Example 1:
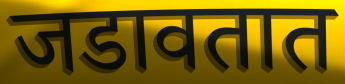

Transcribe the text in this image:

जडावतात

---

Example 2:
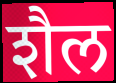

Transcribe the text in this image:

शैल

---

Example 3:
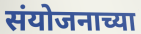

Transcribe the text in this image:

संयोजनाच्या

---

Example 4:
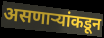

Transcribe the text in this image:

असणाऱ्यांकडून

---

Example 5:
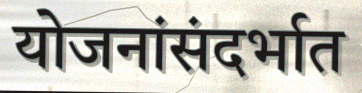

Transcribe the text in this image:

योजनांसंदर्भात